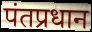
पंतप्रधान